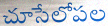
చూసేలోపల